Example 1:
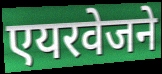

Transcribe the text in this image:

एयरवेजने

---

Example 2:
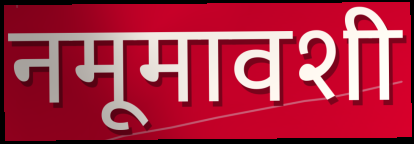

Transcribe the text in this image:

नमूमावशी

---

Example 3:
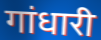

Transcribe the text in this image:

गांधारी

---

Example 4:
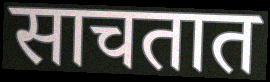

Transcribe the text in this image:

साचतात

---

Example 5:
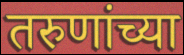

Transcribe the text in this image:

तरुणांच्या